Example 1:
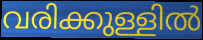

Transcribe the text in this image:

വരിക്കുള്ളിൽ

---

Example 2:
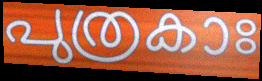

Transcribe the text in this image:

പുത്രകാഃ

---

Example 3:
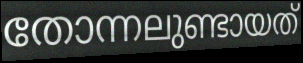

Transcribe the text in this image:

തോന്നലുണ്ടായത്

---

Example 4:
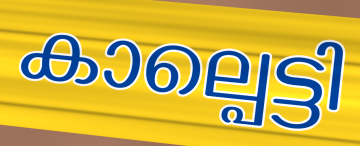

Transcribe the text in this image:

കാല്പെട്ടി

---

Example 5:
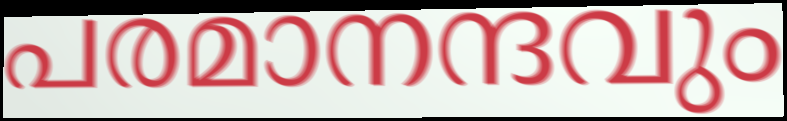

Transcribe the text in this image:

പരമാനന്ദവും